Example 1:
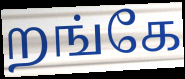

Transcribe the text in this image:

றங்கே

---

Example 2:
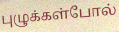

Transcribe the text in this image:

புழுக்கள்போல்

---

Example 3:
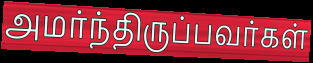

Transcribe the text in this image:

அமர்ந்திருப்பவர்கள்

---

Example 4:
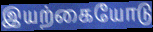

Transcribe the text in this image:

இயற்கையோடு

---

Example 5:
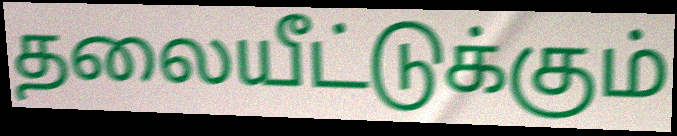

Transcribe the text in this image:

தலையீட்டுக்கும்